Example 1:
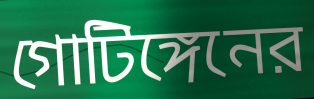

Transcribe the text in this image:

গোটিঙ্গেনের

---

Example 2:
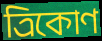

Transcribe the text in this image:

ত্রিকোণ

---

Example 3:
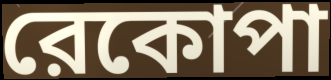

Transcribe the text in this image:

রেকোপা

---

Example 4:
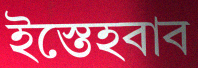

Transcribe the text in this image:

ইস্তেহবাব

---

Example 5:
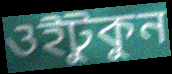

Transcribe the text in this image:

ওইটুকুন